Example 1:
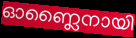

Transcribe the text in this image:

ഓണ്ലൈനായി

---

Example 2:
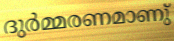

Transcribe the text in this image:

ദുർമ്മരണമാണു്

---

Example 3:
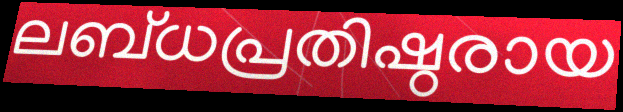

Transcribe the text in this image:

ലബ്ധപ്രതിഷ്ഠരായ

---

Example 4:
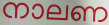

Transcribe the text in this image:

നാലണ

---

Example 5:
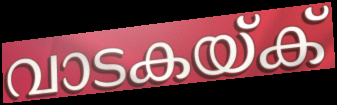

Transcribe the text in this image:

വാടകയ്ക്